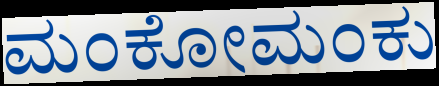
ಮಂಕೋಮಂಕು